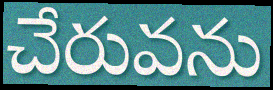
చేరువను